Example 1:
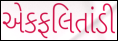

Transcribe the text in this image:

એકફલિતાંડી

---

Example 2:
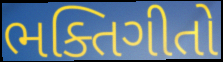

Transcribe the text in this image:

ભક્તિગીતો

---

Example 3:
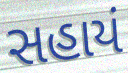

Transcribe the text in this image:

સહાયં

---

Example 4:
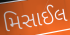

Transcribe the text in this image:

મિસાઈલ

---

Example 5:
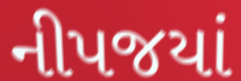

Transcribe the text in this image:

નીપજયાં